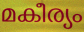
മകീര്യം